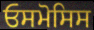
ਓਸਮੋਸਿਸ